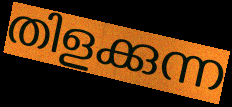
തിളക്കുന്ന